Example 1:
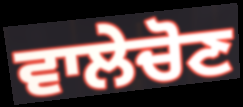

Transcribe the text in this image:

ਵਾਲੇਚੋਣ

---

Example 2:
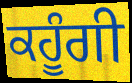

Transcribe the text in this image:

ਕਹੂੰਗੀ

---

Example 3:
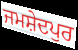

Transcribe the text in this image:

ਜਮਸ਼ੇਦਪੁਰ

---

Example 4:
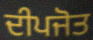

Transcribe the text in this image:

ਦੀਪਜੋਤ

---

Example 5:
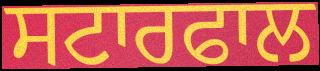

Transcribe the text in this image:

ਸਟਾਰਫਾਲ